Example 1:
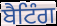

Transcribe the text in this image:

ਬੈਟਿੰਗ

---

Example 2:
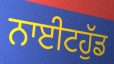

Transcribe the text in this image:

ਨਾਈਟਹੁੱਡ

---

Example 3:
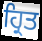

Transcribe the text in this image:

ਹ੍ਰਿਤ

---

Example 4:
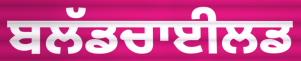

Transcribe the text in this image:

ਬਲੱਡਚਾਈਲਡ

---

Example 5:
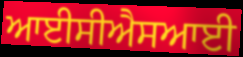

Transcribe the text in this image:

ਆਈਸੀਐਸਆਈ